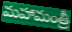
మహామంత్రీ